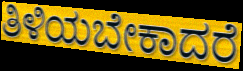
ತಿಳಿಯಬೇಕಾದರೆ